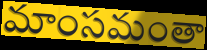
మాంసమంతా